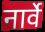
नार्वे